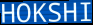
HOKSHI